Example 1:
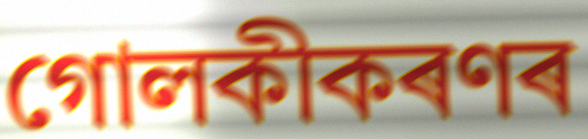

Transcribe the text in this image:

গোলকীকৰণৰ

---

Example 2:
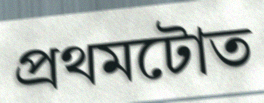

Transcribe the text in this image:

প্ৰথমটোত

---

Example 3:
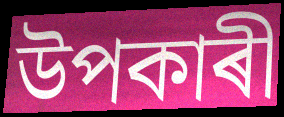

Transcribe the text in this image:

উপকাৰী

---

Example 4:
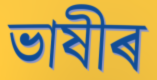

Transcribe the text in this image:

ভাষীৰ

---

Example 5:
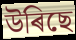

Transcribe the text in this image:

উৰিছে